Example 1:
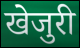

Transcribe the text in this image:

खेजुरी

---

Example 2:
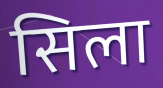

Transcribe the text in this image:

सिला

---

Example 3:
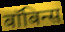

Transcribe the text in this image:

बॉबिन्स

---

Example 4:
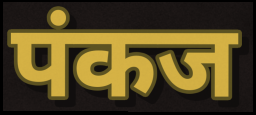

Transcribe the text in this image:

पंकज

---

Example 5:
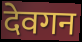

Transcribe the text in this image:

देवगन